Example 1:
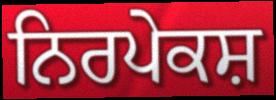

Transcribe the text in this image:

ਨਿਰਪੇਕਸ਼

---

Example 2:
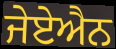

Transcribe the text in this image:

ਜੇਏਐਨ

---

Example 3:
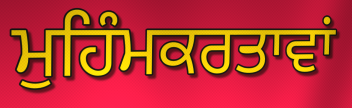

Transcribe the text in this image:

ਮੁਹਿੰਮਕਰਤਾਵਾਂ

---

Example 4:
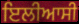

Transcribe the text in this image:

ਇਲੀਆਸੀ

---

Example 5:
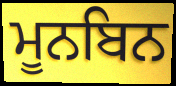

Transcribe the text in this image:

ਮੂਨਬਿਨ